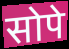
सोपे